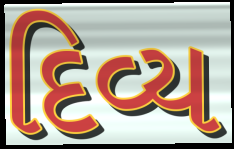
દિવ્ય